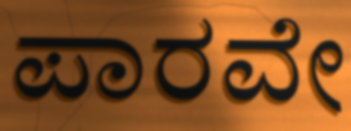
ಪಾರವೇ